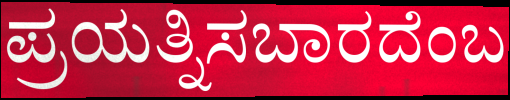
ಪ್ರಯತ್ನಿಸಬಾರದೆಂಬ